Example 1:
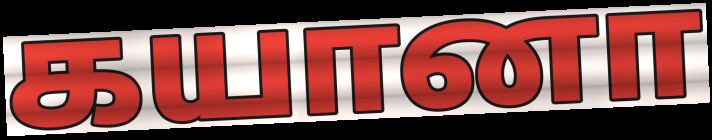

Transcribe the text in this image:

கயானா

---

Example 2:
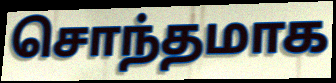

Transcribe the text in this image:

சொந்தமாக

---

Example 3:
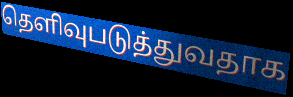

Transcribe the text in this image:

தெளிவுபடுத்துவதாக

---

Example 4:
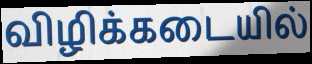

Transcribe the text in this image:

விழிக்கடையில்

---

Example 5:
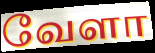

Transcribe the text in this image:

வேளா